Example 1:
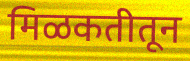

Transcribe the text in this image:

मिळकतीतून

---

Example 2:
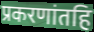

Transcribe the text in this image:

प्रकरणांतहि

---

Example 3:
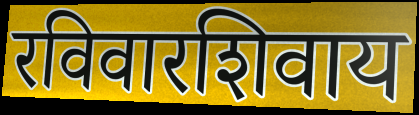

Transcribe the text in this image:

रविवारशिवाय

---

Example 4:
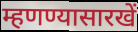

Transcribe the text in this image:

म्हणण्यासारखें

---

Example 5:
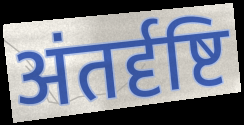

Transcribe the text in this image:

अंतर्दृष्टि